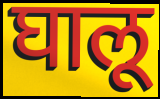
घालू